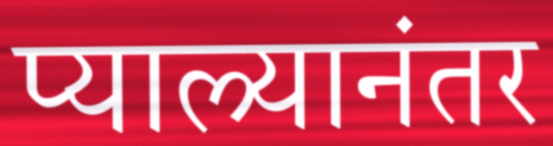
प्याल्यानंतर